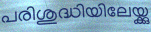
പരിശുദ്ധിയിലേയ്ക്കു